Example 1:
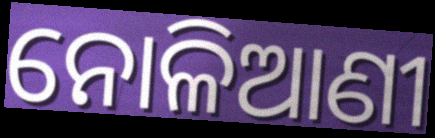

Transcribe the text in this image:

ନୋଳିଆଣୀ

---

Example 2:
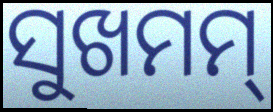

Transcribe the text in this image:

ସୁଖମମ୍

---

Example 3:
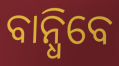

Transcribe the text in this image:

ବାନ୍ଧିବେ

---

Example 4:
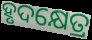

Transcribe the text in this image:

ହୃଦକ୍ଷେତ୍ର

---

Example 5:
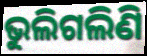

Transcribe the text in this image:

ଭୁଲିଗଲିଣି